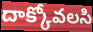
దాక్కోవలసి